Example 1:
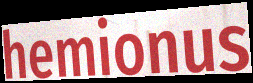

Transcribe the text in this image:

hemionus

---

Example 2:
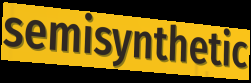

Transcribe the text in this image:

semisynthetic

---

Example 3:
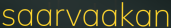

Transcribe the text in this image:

saarvaakan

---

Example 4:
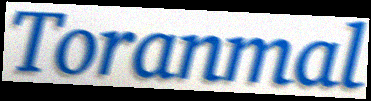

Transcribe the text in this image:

Toranmal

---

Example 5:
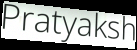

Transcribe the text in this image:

Pratyaksh